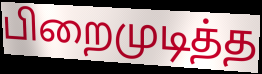
பிறைமுடித்த